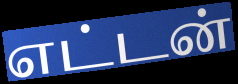
எட்டன்